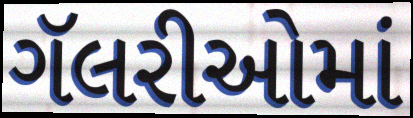
ગૅલરીઓમાં